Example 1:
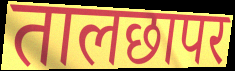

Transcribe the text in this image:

तालछापर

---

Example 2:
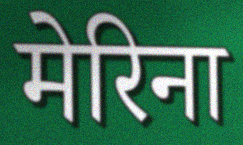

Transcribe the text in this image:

मेरिना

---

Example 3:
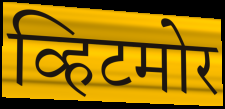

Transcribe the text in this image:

व्हिटमोर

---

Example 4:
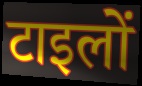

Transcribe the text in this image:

टाइलों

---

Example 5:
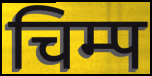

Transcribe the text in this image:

चिम्प